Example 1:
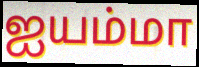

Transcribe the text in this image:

ஐயம்மா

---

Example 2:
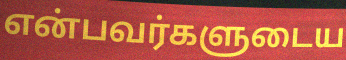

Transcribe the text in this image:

என்பவர்களுடைய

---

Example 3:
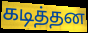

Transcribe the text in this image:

கடித்தன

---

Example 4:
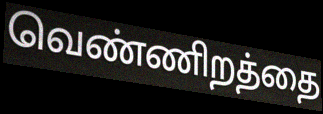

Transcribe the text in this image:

வெண்ணிறத்தை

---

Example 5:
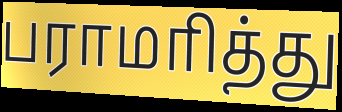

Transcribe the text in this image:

பராமரித்து